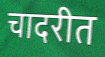
चादरीत